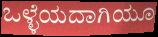
ಒಳ್ಳೆಯದಾಗಿಯೂ